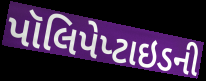
પૉલિપેપ્ટાઇડની